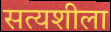
सत्यशीला